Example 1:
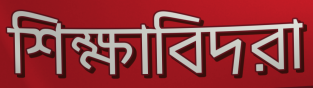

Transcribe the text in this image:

শিক্ষাবিদরা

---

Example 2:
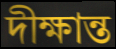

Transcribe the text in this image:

দীক্ষান্ত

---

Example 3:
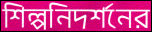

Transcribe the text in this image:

শিল্পনিদর্শনের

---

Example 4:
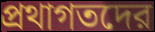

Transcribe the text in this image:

প্রথাগতদের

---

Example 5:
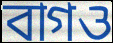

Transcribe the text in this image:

বাগও